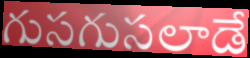
గుసగుసలాడే